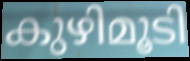
കുഴിമൂടി